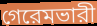
গেরেমভারী